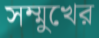
সম্মুখের